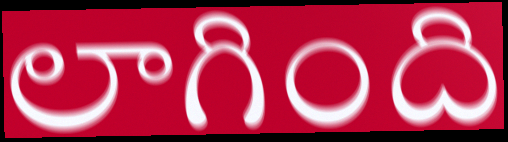
లాగింది